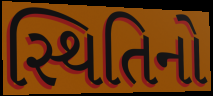
સ્થિતિનો